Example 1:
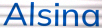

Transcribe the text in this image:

Alsina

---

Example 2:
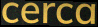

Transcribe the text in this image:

cerca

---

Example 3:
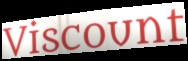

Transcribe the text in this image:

Viscount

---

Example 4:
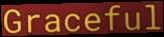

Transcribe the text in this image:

Graceful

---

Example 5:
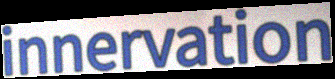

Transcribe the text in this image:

innervation